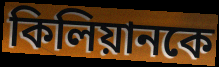
কিলিয়ানকে